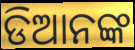
ଡିଆନଙ୍କ